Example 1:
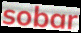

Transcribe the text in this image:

sobar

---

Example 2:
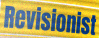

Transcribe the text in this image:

Revisionist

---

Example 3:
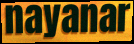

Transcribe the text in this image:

nayanar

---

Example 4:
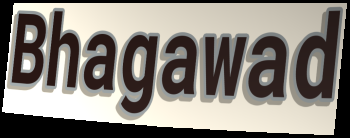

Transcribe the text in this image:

Bhagawad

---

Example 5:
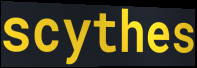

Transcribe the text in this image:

scythes